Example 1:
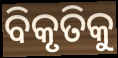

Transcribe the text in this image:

ବିକୃତିକୁ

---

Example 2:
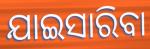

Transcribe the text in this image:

ଯାଇସାରିବା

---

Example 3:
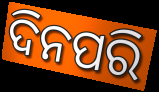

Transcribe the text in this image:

ଦିନପରି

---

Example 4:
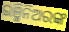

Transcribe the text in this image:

ଇଞ୍ଜିନିଅରଙ୍କ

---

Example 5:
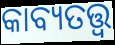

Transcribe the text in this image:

କାବ୍ୟତତ୍ତ୍ୱ